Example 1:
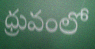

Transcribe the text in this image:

ధ్రువంలో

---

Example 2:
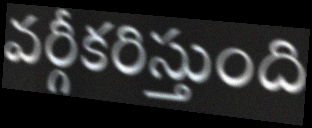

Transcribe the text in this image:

వర్గీకరిస్తుంది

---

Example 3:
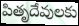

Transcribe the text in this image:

పితృదేవులకు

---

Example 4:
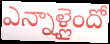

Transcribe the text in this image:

ఎన్నాళ్లైందో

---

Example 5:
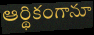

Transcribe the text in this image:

ఆర్థికంగానూ